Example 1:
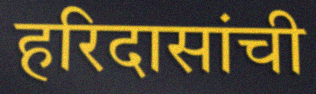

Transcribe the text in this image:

हरिदासांची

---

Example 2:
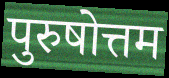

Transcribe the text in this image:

पुरुषोत्तम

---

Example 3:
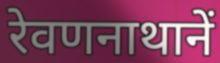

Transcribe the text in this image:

रेवणनाथानें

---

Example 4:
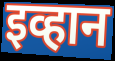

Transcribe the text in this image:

इव्हान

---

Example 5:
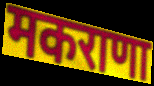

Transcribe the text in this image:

मकराणा